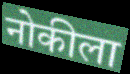
नोकीला